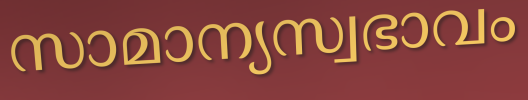
സാമാന്യസ്വഭാവം